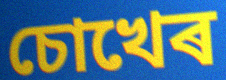
চোখেৰ